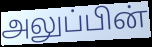
அலுப்பின்